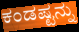
ಕಂಡಷ್ಟನ್ನು